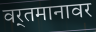
वर्तमानावर